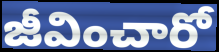
జీవించారో